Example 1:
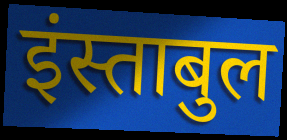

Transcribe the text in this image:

इंस्ताबुल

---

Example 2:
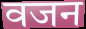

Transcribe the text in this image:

वजन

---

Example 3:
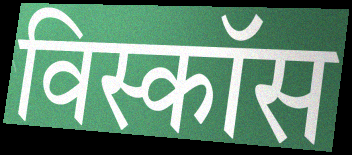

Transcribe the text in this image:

विस्कॉस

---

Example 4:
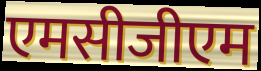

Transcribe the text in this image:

एमसीजीएम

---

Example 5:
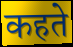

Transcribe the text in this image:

कहते